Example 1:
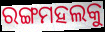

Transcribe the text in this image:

ରଙ୍ଗମହଲକୁ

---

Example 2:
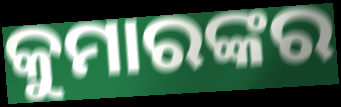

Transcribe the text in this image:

କୁମାରଙ୍କର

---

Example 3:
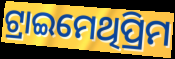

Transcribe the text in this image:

ଟ୍ରାଇମେଥିପ୍ରିମ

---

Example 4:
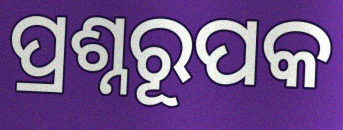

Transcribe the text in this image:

ପ୍ରଶ୍ନରୂପକ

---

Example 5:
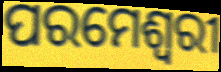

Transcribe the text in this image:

ପରମେଶ୍ୱରୀ